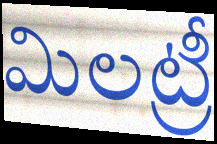
మిలట్రీ